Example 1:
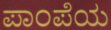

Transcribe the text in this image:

ಪಾಂಪೆಯ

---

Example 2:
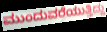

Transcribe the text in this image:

ಮುಂದುವರೆಯುತ್ತಿದ್ದು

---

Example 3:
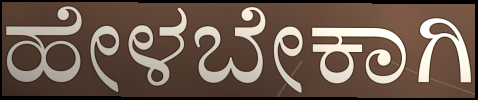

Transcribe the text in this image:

ಹೇಳಬೇಕಾಗಿ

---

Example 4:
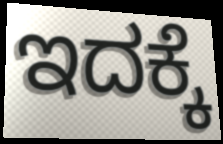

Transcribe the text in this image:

ಇದಕ್ಕೆ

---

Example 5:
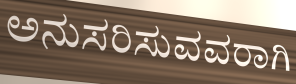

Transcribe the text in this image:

ಅನುಸರಿಸುವವರಾಗಿ